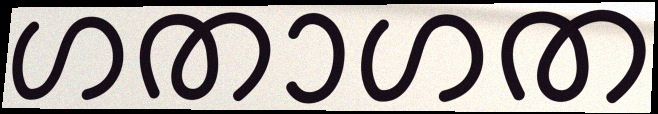
ഗതാഗത